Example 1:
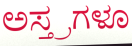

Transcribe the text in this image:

ಅಸ್ತ್ರಗಳೂ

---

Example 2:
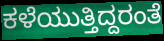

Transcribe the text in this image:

ಕಳೆಯುತ್ತಿದ್ದರಂತೆ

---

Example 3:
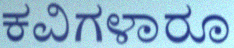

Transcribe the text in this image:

ಕವಿಗಳಾರೂ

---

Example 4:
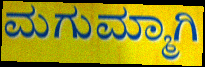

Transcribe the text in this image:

ಮಗುಮ್ಮಾಗಿ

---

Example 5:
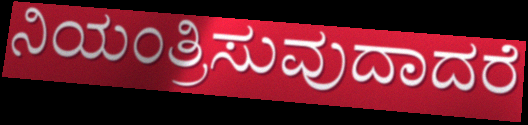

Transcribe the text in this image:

ನಿಯಂತ್ರಿಸುವುದಾದರೆ